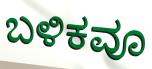
ಬಳಿಕವೂ